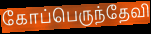
கோப்பெருந்தேவி